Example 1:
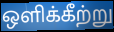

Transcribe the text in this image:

ஒளிக்கீற்று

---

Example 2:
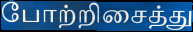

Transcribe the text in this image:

போற்றிசைத்து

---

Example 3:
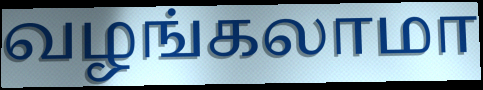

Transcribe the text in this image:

வழங்கலாமா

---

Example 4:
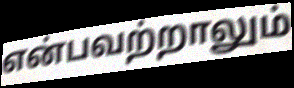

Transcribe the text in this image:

என்பவற்றாலும்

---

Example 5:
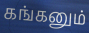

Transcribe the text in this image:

கங்கனும்